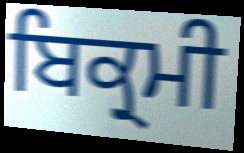
ਬਿਕ੍ਰਮੀ